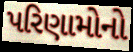
પરિણામોનો